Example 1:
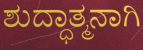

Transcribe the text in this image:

ಶುದ್ಧಾತ್ಮನಾಗಿ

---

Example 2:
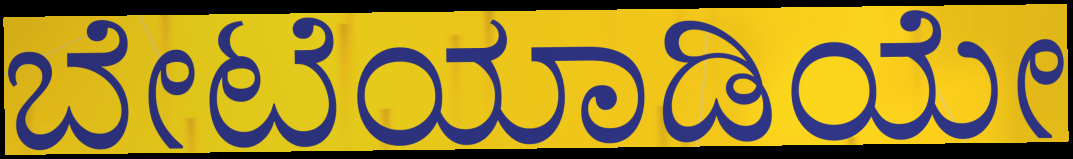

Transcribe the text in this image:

ಬೇಟೆಯಾಡಿಯೇ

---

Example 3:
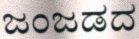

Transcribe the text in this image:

ಜಂಜಡದ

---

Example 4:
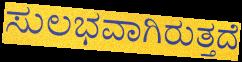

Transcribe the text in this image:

ಸುಲಭವಾಗಿರುತ್ತದೆ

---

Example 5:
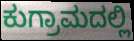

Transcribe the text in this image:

ಕುಗ್ರಾಮದಲ್ಲಿ